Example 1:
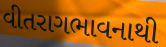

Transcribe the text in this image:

વીતરાગભાવનાથી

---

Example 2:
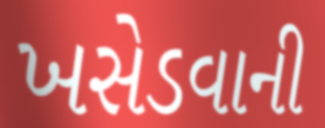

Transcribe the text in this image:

ખસેડવાની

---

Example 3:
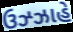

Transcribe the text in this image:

ઉઝ્ઝાહે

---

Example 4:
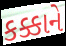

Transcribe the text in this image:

કક્કાને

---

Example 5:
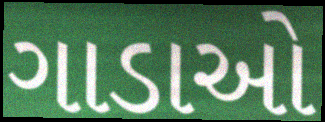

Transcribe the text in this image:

ગાડાઓ